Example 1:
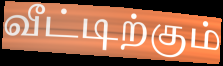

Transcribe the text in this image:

வீட்டிற்கும்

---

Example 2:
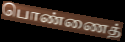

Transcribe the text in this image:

பொண்ணைத்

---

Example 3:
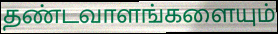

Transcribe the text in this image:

தண்டவாளங்களையும்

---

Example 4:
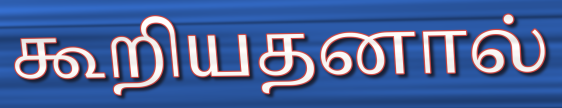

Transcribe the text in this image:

கூறியதனால்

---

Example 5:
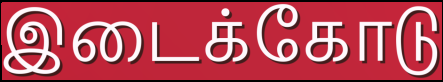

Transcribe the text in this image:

இடைக்கோடு